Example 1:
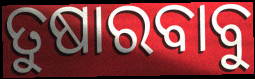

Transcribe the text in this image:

ତୁଷାରବାବୁ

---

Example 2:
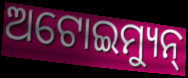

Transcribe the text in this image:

ଅଟୋଇମ୍ୟୁନ୍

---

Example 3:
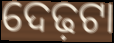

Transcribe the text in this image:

ଦେଢ଼ଟା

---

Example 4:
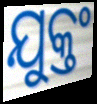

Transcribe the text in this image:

ଯୁକ୍ତଂ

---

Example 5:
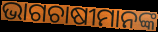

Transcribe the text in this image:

ଭାଗଚାଷୀମାନଙ୍କ